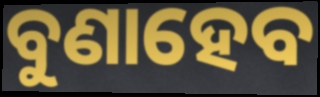
ବୁଣାହେବ